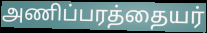
அணிப்பரத்தையர்